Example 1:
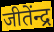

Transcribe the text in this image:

जीतेंन्द्र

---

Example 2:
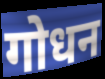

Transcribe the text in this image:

गोधन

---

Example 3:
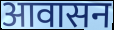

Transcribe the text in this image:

आवासन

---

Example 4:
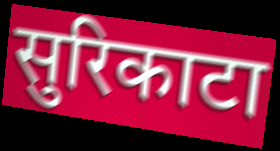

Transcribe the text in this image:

सुरिकाटा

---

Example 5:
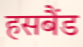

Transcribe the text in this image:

हसबैंड